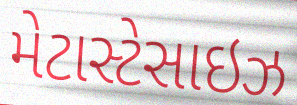
મેટાસ્ટેસાઇઝ